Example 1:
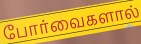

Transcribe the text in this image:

போர்வைகளால்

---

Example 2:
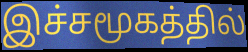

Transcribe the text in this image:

இச்சமூகத்தில்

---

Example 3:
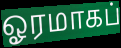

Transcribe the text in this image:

ஓரமாகப்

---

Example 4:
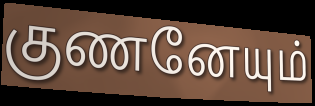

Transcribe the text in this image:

குணனேயும்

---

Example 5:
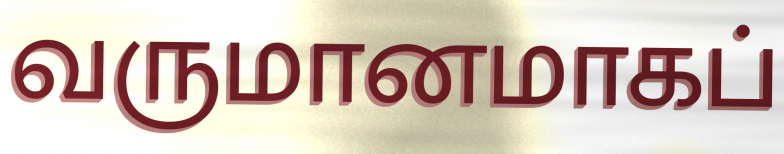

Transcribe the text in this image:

வருமானமாகப்